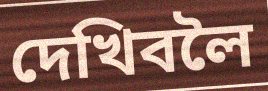
দেখিবলৈ